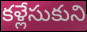
కళ్లేసుకుని